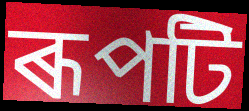
ৰূপটি